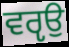
ਵਰੵਉ